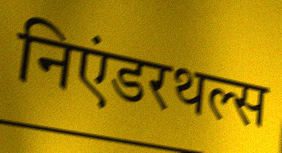
निएंडरथल्स